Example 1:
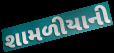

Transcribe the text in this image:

શામળીયાની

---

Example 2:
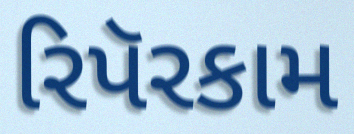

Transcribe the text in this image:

રિપૅરકામ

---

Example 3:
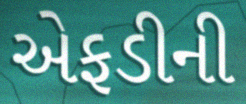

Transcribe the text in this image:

એફડીની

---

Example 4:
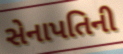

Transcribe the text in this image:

સેનાપતિની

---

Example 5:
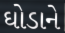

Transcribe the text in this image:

ઘોડાને